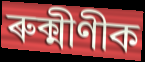
ৰুক্মীণীক